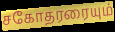
சகோதரரையும்